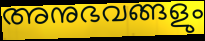
അനുഭവങ്ങളും